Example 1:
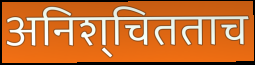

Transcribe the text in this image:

अनिश्चितताच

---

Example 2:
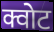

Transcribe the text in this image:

क्वोट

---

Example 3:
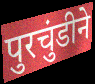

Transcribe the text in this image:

पुरचुंडीने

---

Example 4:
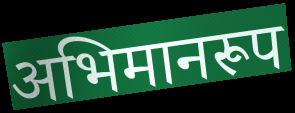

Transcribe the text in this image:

अभिमानरूप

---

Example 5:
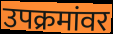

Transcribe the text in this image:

उपक्रमांवर